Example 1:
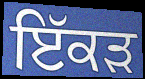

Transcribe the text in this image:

ਇੱਕੜ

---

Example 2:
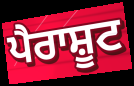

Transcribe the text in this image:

ਪੈਰਾਸ਼ੂਟ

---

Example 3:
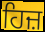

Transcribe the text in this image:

ਹਿਜ਼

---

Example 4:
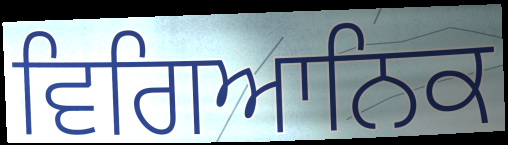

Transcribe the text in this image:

ਵਿਗਿਆਨਿਕ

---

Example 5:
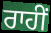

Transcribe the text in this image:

ਰਾਹੀਂ